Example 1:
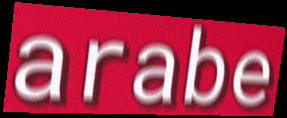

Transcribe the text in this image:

arabe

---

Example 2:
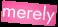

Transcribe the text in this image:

merely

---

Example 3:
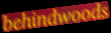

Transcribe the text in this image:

behindwoods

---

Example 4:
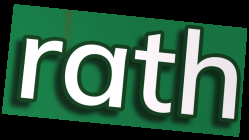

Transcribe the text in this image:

rath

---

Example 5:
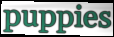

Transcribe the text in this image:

puppies